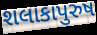
શલાકાપુરુષ